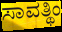
ಸಾವತ್ಥಿಂ